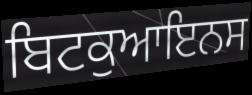
ਬਿਟਕੁਆਇਨਸ